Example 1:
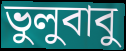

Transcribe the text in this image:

ভুলুবাবু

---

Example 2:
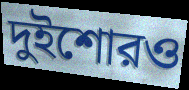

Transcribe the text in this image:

দুইশোরও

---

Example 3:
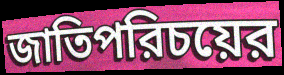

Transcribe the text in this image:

জাতিপরিচয়ের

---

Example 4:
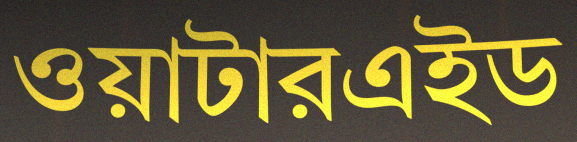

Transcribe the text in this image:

ওয়াটারএইড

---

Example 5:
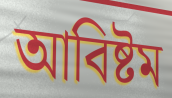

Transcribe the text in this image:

আবিষ্টম